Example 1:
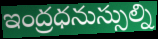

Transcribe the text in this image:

ఇంద్రధనుస్సుల్ని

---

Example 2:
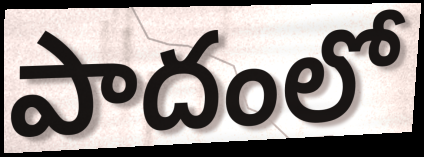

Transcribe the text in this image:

పాదంలో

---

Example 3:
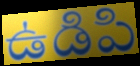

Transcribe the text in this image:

ఉడిపి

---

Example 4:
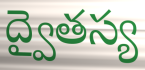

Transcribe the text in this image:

ద్వైతస్య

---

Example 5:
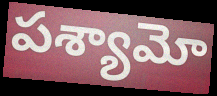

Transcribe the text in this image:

పశ్యామో